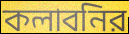
কলাবনির